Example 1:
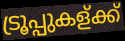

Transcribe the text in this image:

ട്രൂപ്പുകള്ക്ക്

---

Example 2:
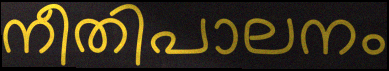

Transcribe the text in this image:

നീതിപാലനം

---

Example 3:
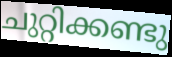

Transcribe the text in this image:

ചുറ്റിക്കണ്ടു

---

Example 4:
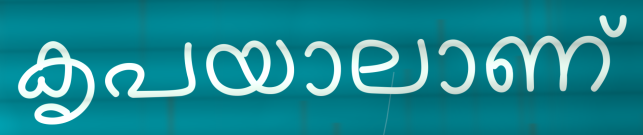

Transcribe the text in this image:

കൃപയാലാണ്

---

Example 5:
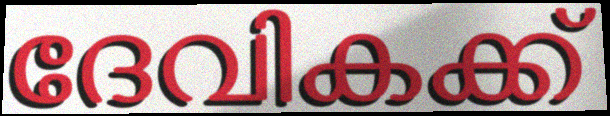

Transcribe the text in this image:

ദേവികക്ക്